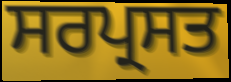
ਸਰਪ੍ਰਸਤ